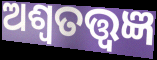
ଅଶ୍ୱତତ୍ତ୍ୱଜ୍ଞ